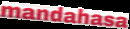
mandahasa